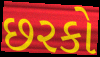
છરકો